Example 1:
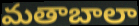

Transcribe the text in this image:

మతాబాలా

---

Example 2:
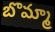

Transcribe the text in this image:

బొమ్మా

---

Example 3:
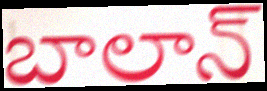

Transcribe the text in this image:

బాలాన్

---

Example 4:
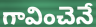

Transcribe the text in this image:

గావించెనే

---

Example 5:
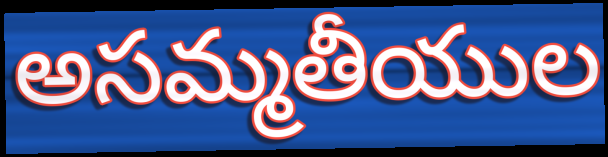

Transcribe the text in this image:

అసమ్మతీయుల